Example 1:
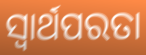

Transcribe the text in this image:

ସ୍ବାର୍ଥପରତା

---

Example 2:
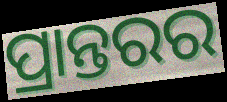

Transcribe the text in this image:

ପ୍ରାନ୍ତରର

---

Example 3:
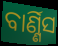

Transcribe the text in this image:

ବାର୍ଣ୍ଣିସ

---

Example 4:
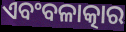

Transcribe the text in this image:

ଏବଂବଳାତ୍କାର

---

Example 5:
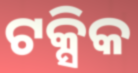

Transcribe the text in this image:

ଟକ୍ସିକ